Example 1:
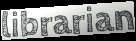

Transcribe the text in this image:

librarian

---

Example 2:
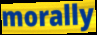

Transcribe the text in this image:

morally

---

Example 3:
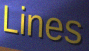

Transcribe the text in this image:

Lines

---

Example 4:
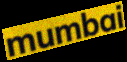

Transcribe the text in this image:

mumbai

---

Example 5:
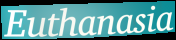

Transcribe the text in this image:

Euthanasia